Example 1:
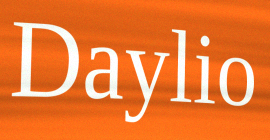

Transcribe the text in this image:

Daylio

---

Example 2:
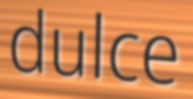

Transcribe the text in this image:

dulce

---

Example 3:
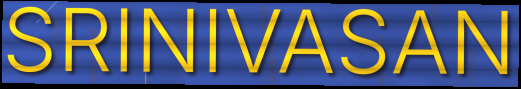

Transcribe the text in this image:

SRINIVASAN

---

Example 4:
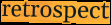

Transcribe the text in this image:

retrospect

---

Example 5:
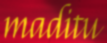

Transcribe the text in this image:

maditu